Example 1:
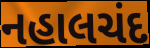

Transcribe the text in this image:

નહાલચંદ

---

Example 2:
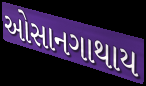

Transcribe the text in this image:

ઓસાનગાથાય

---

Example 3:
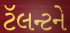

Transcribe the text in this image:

ટૅલન્ટને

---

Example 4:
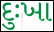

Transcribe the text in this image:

દુઃખા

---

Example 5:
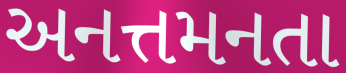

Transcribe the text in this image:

અનત્તમનતા